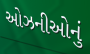
ઓઝનીઓનું